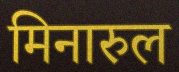
मिनारुल